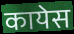
कायेस